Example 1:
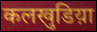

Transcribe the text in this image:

कलखुडिय़ा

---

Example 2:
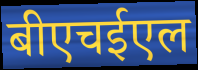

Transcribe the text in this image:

बीएचईएल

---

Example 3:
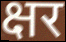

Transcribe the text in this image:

क्षर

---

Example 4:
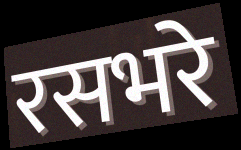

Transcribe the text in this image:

रसभरे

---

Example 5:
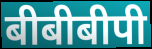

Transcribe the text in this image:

बीबीबीपी